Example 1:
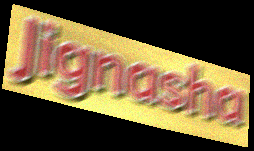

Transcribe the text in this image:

Jignasha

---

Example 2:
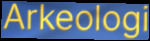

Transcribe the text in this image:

Arkeologi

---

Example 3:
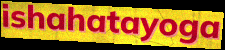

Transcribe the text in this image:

ishahatayoga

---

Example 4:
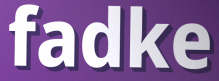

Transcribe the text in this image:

fadke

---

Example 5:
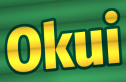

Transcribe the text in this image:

Okui